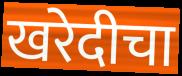
खरेदीचा